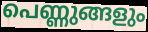
പെണ്ണുങ്ങളും